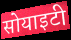
सोयाइटी